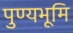
पुण्यभूमि